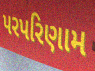
પરપરિણામ